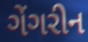
ગેંગરીન